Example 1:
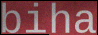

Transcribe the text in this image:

biha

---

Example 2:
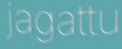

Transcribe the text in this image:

jagattu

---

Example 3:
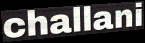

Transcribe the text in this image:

challani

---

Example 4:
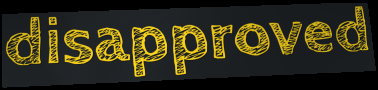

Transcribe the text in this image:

disapproved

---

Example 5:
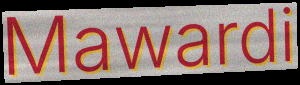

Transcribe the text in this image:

Mawardi